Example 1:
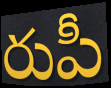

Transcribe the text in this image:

రుపీ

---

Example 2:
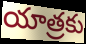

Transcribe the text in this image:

యాత్రకు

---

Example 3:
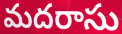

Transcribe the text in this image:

మదరాసు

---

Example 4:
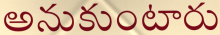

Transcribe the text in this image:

అనుకుంటారు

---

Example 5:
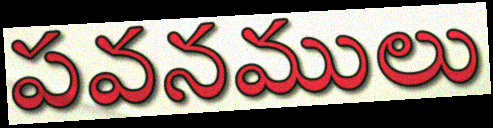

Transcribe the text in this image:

పవనములు